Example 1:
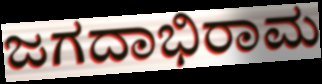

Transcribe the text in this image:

ಜಗದಾಭಿರಾಮ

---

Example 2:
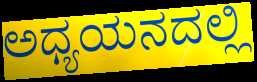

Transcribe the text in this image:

ಅಧ್ಯಯನದಲ್ಲಿ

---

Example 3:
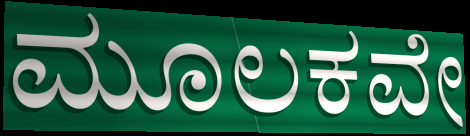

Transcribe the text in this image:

ಮೂಲಕವೇ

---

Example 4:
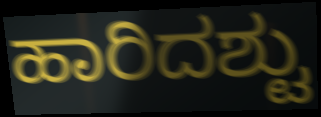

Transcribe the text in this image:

ಹಾರಿದಶ್ಟು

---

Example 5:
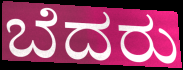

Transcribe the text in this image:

ಬೆದರು